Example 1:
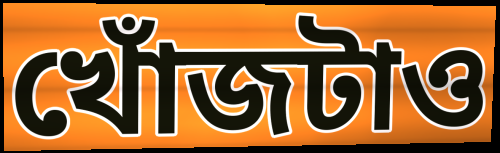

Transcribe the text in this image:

খোঁজটাও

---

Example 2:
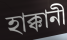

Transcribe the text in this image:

হাক্কানী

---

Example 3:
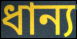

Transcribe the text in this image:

ধান্য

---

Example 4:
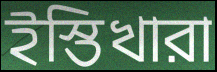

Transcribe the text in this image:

ইস্তিখারা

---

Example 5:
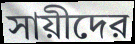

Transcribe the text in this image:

সায়ীদের